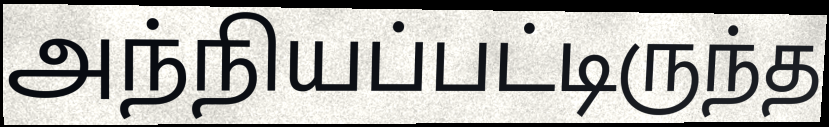
அந்நியப்பட்டிருந்த